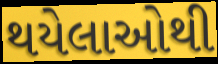
થયેલાઓથી